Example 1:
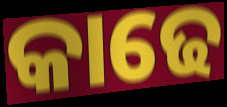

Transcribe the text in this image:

କାଢେ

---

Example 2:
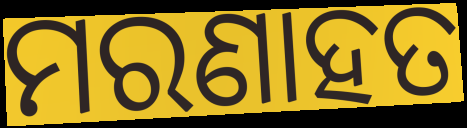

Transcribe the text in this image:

ମରଣାହତ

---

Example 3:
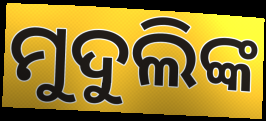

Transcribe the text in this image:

ମୁଦୁଲିଙ୍କ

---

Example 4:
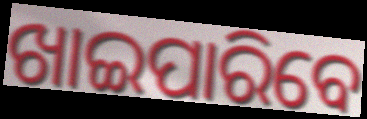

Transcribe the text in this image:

ଖାଇପାରିବେ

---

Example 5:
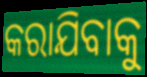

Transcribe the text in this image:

କରାଯିବାକୁ